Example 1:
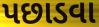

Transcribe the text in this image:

પછાડવા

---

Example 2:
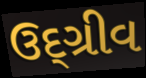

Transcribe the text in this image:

ઉદ્ગ્રીવ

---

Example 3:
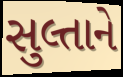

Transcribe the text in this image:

સુલ્તાને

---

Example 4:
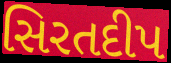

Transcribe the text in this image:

સિરતદીપ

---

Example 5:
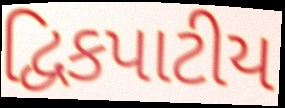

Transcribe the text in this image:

દ્વિકપાટીય